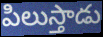
పిలుస్తాడు